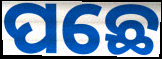
ପଛେ